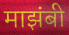
माझंबी